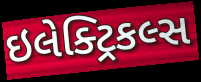
ઇલેક્ટ્રિકલ્સ